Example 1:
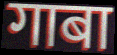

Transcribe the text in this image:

गाबा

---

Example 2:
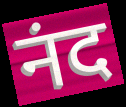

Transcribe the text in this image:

नंद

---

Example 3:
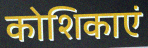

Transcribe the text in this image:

कोशिकाएं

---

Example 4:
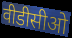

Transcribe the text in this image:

वीडीसीओ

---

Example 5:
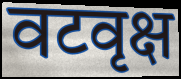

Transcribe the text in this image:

वटवृक्ष